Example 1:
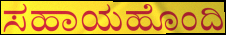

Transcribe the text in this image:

ಸಹಾಯಹೊಂದಿ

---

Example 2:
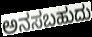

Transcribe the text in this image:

ಅನಸಬಹುದು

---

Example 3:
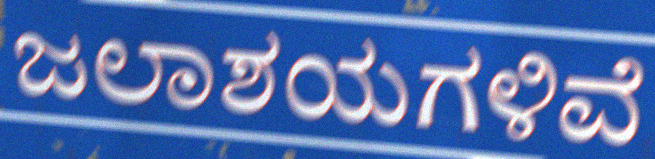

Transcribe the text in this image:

ಜಲಾಶಯಗಳಿವೆ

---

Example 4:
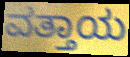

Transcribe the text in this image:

ವತ್ತಾಯ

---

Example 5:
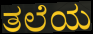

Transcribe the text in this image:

ತಲೆಯ